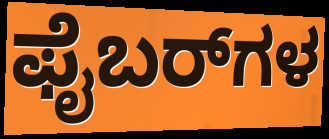
ಫೈಬರ್‌ಗಳ